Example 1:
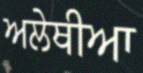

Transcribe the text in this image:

ਅਲੇਥੀਆ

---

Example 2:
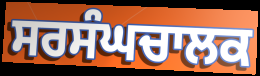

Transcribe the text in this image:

ਸਰਸੰਘਚਾਲਕ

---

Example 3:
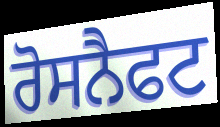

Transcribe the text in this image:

ਰੋਸਨੈਫਟ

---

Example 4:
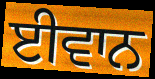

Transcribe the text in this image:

ਈਵਾਨ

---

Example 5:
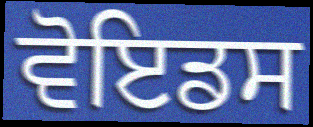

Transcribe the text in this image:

ਵੋਇਡਸ